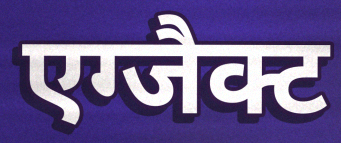
एग्जैक्ट